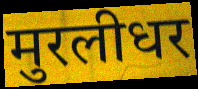
मुरलीधर